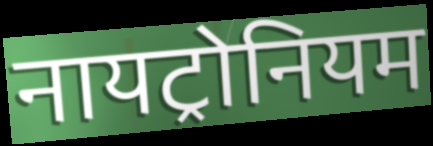
नायट्रोनियम